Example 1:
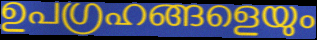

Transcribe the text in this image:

ഉപഗ്രഹങ്ങളെയും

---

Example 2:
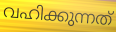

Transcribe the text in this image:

വഹിക്കുന്നത്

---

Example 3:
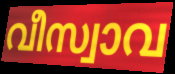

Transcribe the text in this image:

വീസ്വാവ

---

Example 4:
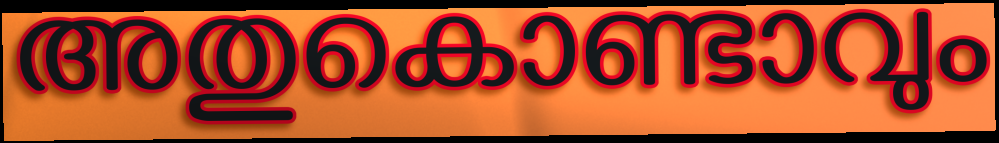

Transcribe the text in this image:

അതുകൊണ്ടാവും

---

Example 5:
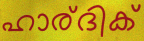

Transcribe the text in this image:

ഹാര്ദിക്